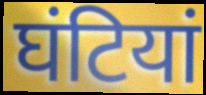
घंटियां